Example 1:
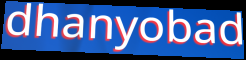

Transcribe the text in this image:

dhanyobad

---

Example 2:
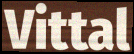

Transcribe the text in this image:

Vittal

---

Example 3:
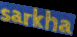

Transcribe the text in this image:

sarkha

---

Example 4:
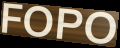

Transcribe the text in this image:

FOPO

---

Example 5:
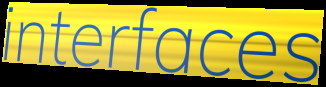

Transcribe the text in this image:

interfaces